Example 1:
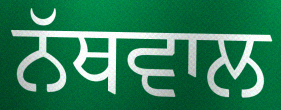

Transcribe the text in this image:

ਨੱਥਵਾਲ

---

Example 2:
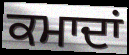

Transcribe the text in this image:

ਕਮਾਦਾਂ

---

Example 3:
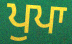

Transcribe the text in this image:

ਪੁਪਾ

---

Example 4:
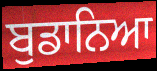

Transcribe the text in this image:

ਬੁਡਾਨਿਆ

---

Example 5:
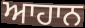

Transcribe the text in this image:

ਆਹਾਨ